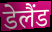
डेलैंड